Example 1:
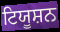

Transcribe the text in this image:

ਟਿਯੂਸ਼ਨ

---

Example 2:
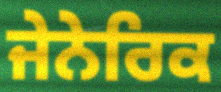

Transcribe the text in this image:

ਜੇਨੇਰਿਕ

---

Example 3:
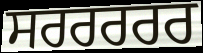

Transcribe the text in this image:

ਸਰਰਰਰਰ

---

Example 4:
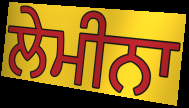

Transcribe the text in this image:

ਲੇਮੀਨਾ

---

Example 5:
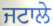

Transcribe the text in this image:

ਜਟਾਲੇ